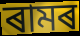
ৰামৰ